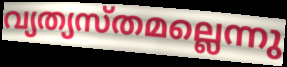
വ്യത്യസ്തമല്ലെന്നു